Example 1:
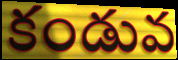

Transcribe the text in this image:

కండువ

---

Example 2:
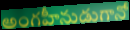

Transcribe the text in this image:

అంగహీనుడుగానో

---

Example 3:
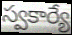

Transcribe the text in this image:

స్వకార్యే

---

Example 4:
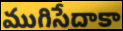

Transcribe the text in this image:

ముగిసేదాకా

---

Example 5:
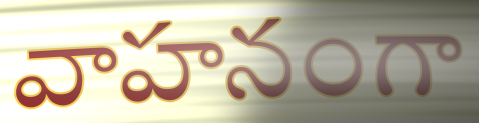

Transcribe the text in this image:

వాహనంగా